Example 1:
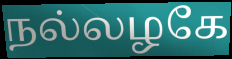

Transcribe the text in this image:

நல்லழகே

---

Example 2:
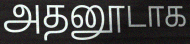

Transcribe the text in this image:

அதனூடாக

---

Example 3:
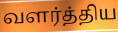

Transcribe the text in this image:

வளர்த்திய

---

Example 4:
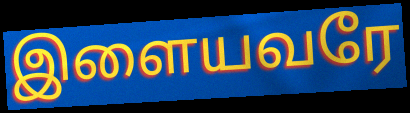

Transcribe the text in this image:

இளையவரே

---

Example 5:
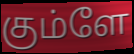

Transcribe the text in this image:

கும்ளே